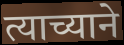
त्याच्याने